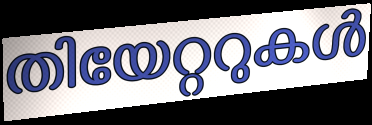
തിയേറ്ററുകൾ